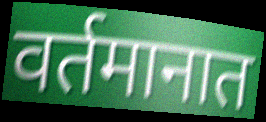
वर्तमानात